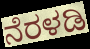
ನೆರಳಡಿ